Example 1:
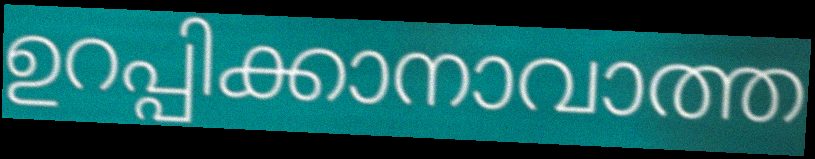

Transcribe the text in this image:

ഉറപ്പിക്കാനാവാത്ത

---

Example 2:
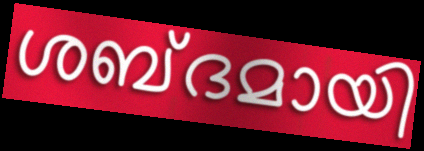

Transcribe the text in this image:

ശബ്ദമായി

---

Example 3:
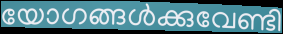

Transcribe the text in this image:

യോഗങ്ങൾക്കുവേണ്ടി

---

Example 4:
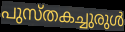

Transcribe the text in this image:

പുസ്തകച്ചുരുൾ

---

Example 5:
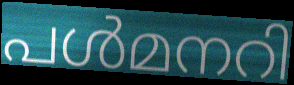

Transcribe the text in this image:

പൾമനറി